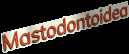
Mastodontoidea